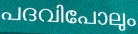
പദവിപോലും